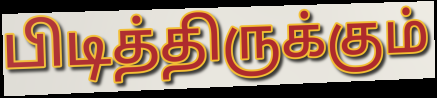
பிடித்திருக்கும்